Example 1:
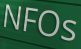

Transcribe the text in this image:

NFOs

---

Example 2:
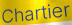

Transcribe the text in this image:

Chartier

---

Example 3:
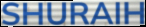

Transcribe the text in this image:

SHURAIH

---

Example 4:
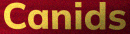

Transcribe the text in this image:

Canids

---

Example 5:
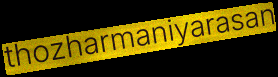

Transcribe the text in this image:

thozharmaniyarasan